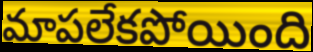
మాపలేకపోయింది